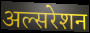
अल्सरेशन